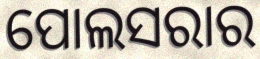
ପୋଲସରାର